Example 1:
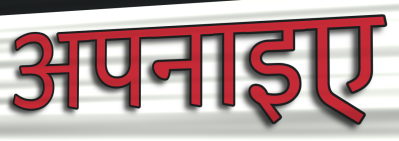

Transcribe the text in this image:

अपनाइए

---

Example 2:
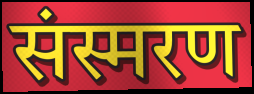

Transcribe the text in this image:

संस्मरण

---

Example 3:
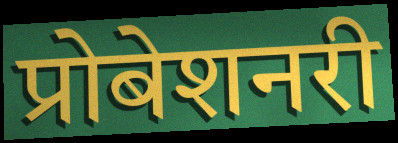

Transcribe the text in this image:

प्रोबेशनरी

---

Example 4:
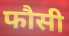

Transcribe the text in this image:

फौसी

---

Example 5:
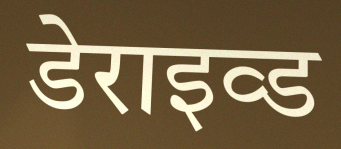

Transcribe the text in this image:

डेराइव्ड